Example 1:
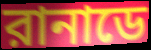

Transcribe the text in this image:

রানাডে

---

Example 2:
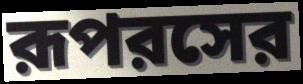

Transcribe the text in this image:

রূপরসের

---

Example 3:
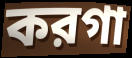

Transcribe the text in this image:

করগা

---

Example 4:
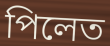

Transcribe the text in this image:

পিলেত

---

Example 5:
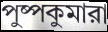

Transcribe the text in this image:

পুষ্পকুমারা